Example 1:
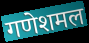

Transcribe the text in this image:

गणेशमल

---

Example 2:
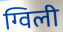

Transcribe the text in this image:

ग्विली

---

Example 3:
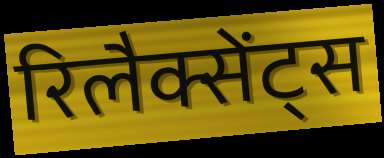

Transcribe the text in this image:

रिलैक्सेंट्स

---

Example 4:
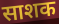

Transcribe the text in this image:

साशक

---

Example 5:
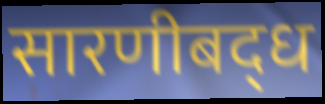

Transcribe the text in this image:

सारणीबद्ध